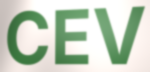
CEV